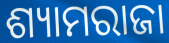
ଶ୍ୟାମରାଜା